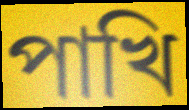
পাখি